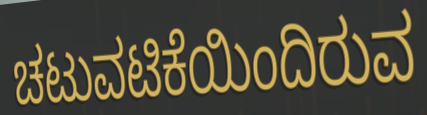
ಚಟುವಟಿಕೆಯಿಂದಿರುವ